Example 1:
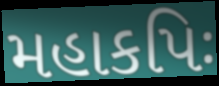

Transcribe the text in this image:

મહાકપિઃ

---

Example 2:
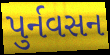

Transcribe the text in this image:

પુર્નવસન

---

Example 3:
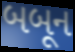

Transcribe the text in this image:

બબૂન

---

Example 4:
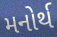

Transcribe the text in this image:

મનોર્થ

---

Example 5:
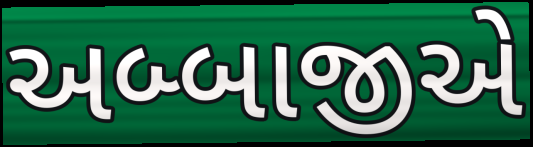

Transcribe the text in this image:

અબ્બાજીએ